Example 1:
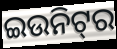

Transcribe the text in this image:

ଇଉନିଟ୍‍ର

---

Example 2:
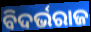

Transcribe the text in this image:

ବିଦର୍ଭରାଜ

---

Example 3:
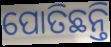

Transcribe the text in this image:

ପୋତିଛନ୍ତି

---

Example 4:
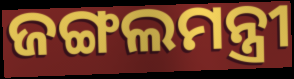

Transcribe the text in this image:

ଜଙ୍ଗଲମନ୍ତ୍ରୀ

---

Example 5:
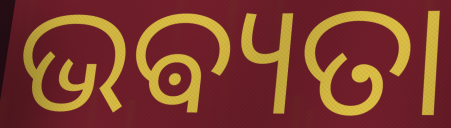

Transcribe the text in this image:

ଭଵ୍ୟତା